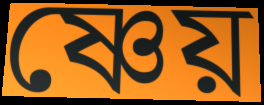
ষ্ণেয়